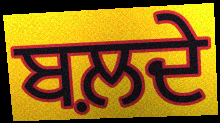
ਬਲ਼ਦੇ